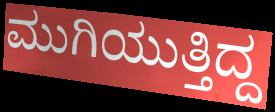
ಮುಗಿಯುತ್ತಿದ್ದ